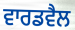
ਵਾਰਡਵੈਲ